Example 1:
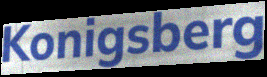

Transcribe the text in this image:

Konigsberg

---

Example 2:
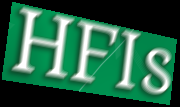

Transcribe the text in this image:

HFIs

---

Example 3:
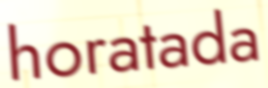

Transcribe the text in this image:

horatada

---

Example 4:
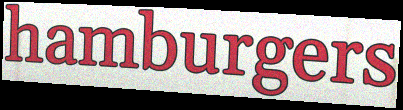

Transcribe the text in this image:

hamburgers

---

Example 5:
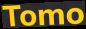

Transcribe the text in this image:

Tomo